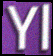
Yl